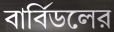
বার্বিডলের